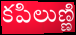
కపిలుణ్ణి